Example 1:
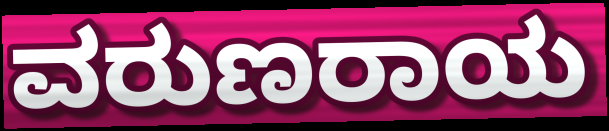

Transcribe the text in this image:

ವರುಣರಾಯ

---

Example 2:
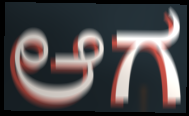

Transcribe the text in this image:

ಆಗ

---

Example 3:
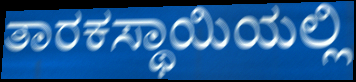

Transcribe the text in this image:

ತಾರಕಸ್ಥಾಯಿಯಲ್ಲಿ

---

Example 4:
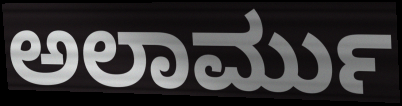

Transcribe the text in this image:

ಅಲಾರ್ಮು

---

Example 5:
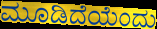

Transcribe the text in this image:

ಮೂಡಿದೆಯೆಂದು